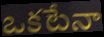
ఒకటేనా